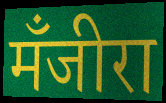
मँजीरा